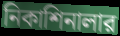
নিকাশিনালার